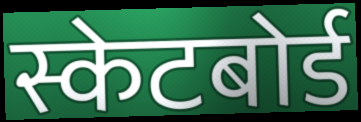
स्केटबोर्ड